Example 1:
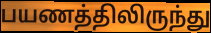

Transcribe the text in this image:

பயணத்திலிருந்து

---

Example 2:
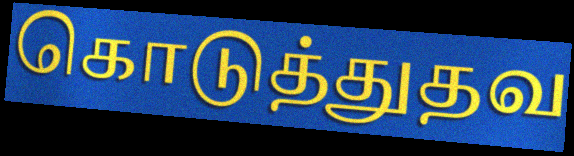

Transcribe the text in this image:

கொடுத்துதவ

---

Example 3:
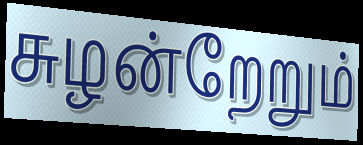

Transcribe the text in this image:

சுழன்றேறும்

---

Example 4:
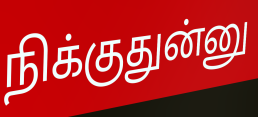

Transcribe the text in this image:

நிக்குதுன்னு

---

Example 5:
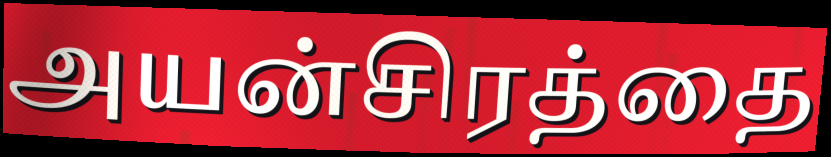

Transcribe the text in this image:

அயன்சிரத்தை